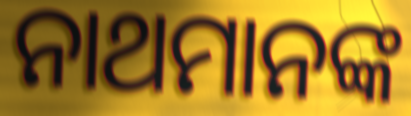
ନାଥମାନଙ୍କ